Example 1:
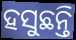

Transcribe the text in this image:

ହସୁଛନ୍ତି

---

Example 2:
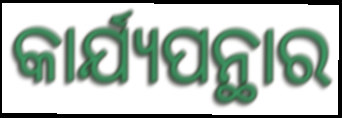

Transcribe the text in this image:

କାର୍ଯ୍ୟପନ୍ଥାର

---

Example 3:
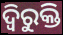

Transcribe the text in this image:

ଦ୍ୱିରୁକ୍ତି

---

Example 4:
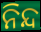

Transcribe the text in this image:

ନିନ୍ଦ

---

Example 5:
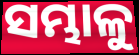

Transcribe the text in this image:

ସମ୍ଭାଳୁ